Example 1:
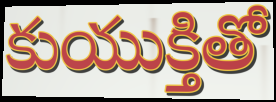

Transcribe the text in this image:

కుయుక్తితో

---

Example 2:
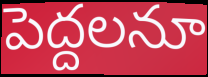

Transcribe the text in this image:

పెద్దలనూ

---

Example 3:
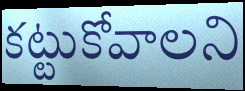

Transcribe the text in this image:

కట్టుకోవాలని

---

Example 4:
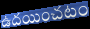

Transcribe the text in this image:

ఉదయించటం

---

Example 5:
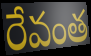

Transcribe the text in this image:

రేవంత